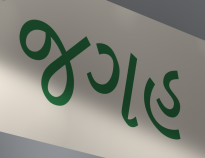
જગહ